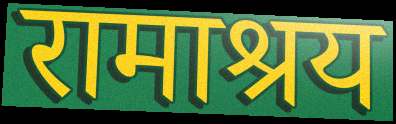
रामाश्रय